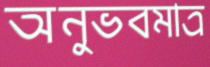
অনুভবমাত্র